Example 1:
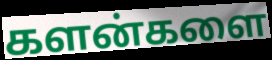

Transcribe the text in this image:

களன்களை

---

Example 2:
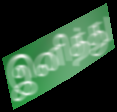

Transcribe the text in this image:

இனித்து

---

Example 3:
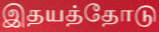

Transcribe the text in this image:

இதயத்தோடு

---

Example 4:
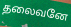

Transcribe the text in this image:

தலைவனே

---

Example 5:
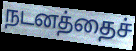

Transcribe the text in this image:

நடனத்தைச்